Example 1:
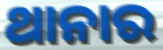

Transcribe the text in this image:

ଥାନାର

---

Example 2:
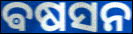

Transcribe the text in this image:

ଵଷସନ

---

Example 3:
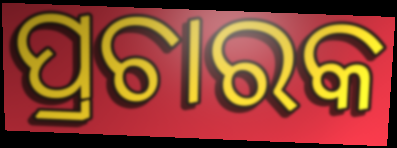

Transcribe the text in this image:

ପ୍ରଚାରକ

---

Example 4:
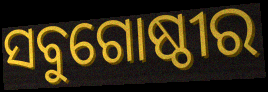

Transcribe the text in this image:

ସବୁଗୋଷ୍ଠୀର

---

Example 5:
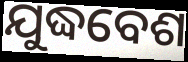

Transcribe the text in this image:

ଯୁଦ୍ଧବେଶ